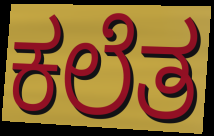
ಕಲೆತ